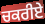
ਚਕਰੀਏ